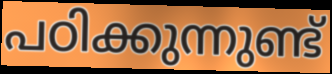
പഠിക്കുന്നുണ്ട്